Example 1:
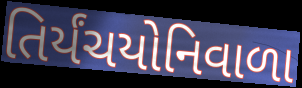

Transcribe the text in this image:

તિર્યંચયોનિવાળા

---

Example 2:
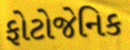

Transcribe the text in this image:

ફોટોજેનિક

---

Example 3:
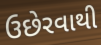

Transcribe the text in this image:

ઉછેરવાથી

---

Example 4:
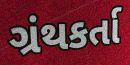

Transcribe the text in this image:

ગ્રંથકર્તા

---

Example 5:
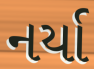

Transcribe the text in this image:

નર્યા